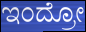
ಇಂದ್ರೋ